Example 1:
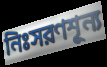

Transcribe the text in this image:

নিঃসরণশূন্য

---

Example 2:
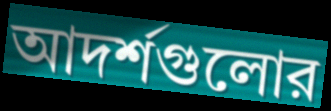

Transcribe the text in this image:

আদর্শগুলোর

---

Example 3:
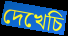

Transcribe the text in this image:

দেখেচি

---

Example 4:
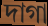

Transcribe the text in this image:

দাগা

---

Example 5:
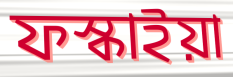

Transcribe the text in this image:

ফস্কাইয়া